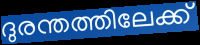
ദുരന്തത്തിലേക്ക്